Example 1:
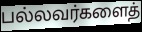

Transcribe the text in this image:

பல்லவர்களைத்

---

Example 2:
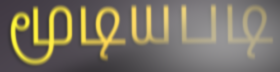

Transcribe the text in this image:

மூடியபடி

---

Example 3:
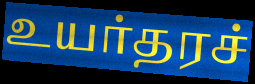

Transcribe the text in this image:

உயர்தரச்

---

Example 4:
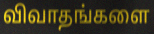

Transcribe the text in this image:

விவாதங்களை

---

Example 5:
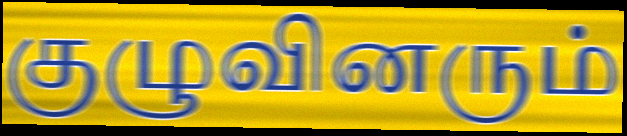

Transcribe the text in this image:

குழுவினரும்